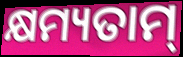
କ୍ଷମ୍ୟତାମ୍